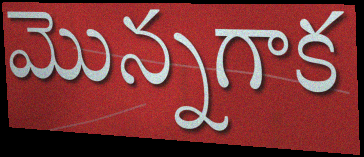
మొన్నగాక